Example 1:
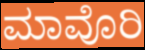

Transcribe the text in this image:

ಮಾವೊರಿ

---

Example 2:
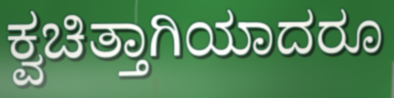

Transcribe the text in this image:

ಕ್ವಚಿತ್ತಾಗಿಯಾದರೂ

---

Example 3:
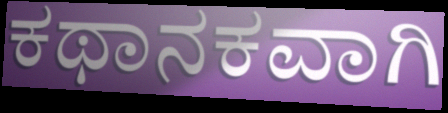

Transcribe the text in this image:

ಕಥಾನಕವಾಗಿ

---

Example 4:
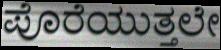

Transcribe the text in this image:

ಪೊರೆಯುತ್ತಲೇ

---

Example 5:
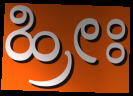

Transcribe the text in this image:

ಹ್ರೀಃ